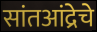
सांतआंद्रेचे